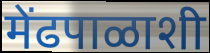
मेंढपाळाशी